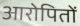
आरोपितों